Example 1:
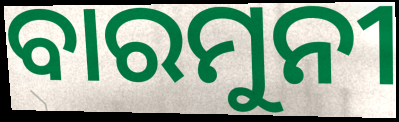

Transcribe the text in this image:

ବାରମୁନୀ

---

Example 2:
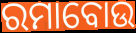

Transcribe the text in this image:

ରମାବୋଉ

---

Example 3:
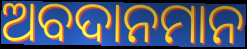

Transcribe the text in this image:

ଅବଦାନମାନ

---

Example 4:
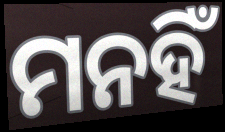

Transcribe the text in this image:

ମନହିଁ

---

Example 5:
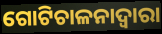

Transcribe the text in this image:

ଗୋଟିଚାଳନାଦ୍ୱାରା